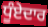
ਧੂੰਏਦਾਰ